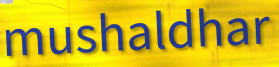
mushaldhar